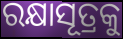
ରକ୍ଷାସୂତ୍ରକୁ